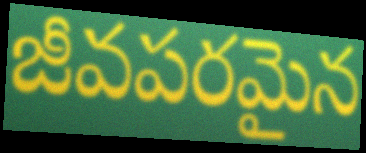
జీవపరమైన